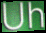
Uh